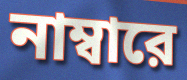
নাম্বারে